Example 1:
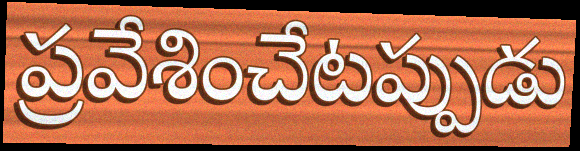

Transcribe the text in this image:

ప్రవేశించేటప్పుడు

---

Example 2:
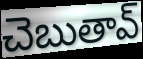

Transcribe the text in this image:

చెబుతావ్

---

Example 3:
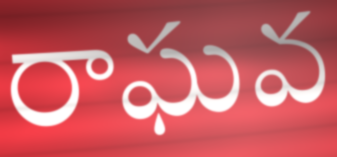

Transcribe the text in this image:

రాఘవ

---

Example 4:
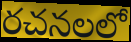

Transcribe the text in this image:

రచనలలో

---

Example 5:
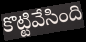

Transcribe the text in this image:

కొట్టివేసింది